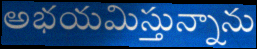
అభయమిస్తున్నాను